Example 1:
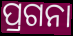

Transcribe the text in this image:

ପ୍ରଗନା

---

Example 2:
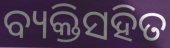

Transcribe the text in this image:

ବ୍ୟକ୍ତିସହିତ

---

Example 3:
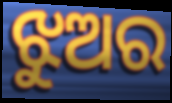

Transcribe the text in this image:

ଝୁଅର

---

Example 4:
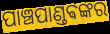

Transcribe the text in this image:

ପାଞ୍ଚପାଣ୍ଡଵଙ୍କର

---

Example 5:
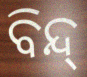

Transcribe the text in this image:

ବିନ୍ଦ୍